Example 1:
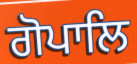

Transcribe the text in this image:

ਗੋਪਾਲਿ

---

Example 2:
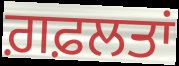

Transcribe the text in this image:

ਗ਼ਫ਼ਲਤਾਂ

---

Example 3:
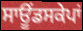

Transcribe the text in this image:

ਸਾਊਂਡਸਕੇਪਾਂ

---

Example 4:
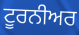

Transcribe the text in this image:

ਟੂਰਨੀਅਰ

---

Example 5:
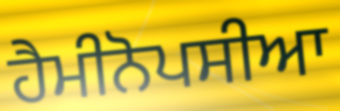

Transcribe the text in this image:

ਹੈਮੀਨੋਪਸੀਆ